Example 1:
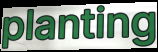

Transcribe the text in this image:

planting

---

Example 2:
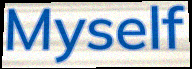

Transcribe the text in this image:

Myself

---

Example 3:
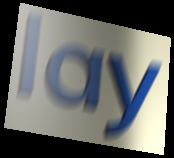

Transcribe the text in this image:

lay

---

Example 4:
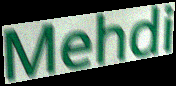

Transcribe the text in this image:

Mehdi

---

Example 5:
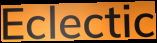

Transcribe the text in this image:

Eclectic